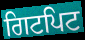
ਗਿਟਪਿਟ